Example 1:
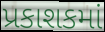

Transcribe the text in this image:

પ્રકાશકમાં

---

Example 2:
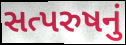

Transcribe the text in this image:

સત્પરુષનું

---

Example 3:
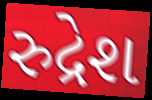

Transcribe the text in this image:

રુદ્રેશ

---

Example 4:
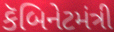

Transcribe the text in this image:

કૅબિનેટમંત્રી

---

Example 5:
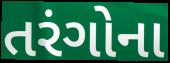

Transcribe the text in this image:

તરંગોના